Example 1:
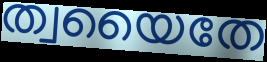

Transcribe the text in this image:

ത്വയൈതേ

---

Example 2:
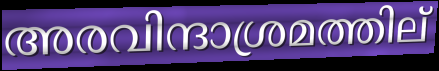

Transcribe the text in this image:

അരവിന്ദാശ്രമത്തില്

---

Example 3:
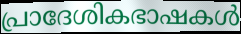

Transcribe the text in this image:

പ്രാദേശികഭാഷകൾ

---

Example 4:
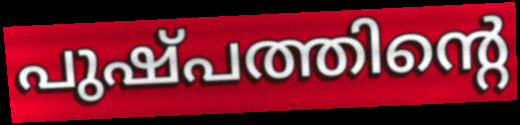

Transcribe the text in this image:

പുഷ്പത്തിന്റെ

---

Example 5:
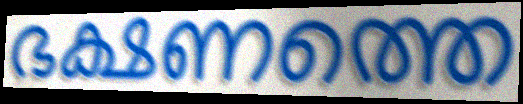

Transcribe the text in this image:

ഭക്ഷണത്തെ